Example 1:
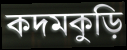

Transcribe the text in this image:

কদমকুড়ি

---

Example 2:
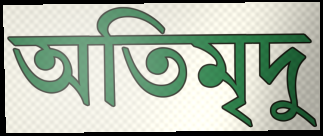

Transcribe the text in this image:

অতিমৃদু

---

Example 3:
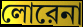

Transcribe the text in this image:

লোরেনা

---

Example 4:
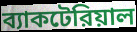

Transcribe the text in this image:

ব্যাকটেরিয়াল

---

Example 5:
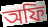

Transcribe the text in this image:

অফি